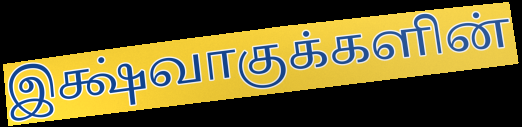
இக்ஷ்வாகுக்களின்